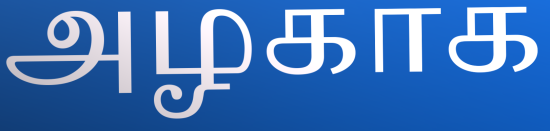
அழகாக